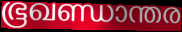
ഭൂഖണ്ഡാന്തര